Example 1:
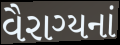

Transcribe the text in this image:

વૈરાગ્યનાં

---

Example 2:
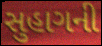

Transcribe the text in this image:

સુહાગની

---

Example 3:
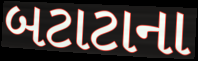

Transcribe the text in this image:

બટાટાના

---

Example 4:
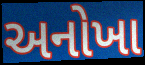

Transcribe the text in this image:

અનોખા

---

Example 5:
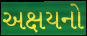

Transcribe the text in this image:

અક્ષયનો